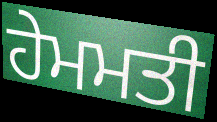
ਹੇਮਮਤੀ